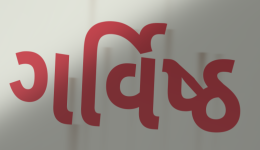
ગર્વિષ્ઠ